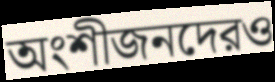
অংশীজনদেরও